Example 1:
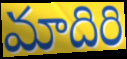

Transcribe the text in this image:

మాదిరి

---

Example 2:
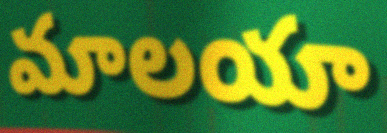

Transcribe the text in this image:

మాలయా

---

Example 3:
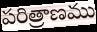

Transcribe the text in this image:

పరిత్రాణము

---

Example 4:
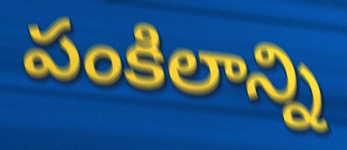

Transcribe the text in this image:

పంకిలాన్ని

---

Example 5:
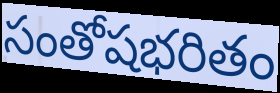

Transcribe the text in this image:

సంతోషభరితం